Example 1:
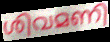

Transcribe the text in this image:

ശിവമണി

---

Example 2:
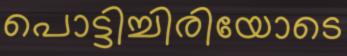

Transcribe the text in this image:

പൊട്ടിച്ചിരിയോടെ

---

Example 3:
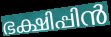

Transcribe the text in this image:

ഭക്ഷിപ്പിൻ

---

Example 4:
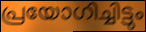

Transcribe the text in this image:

പ്രയോഗിച്ചിട്ടും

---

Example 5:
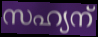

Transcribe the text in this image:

സഹ്യന്